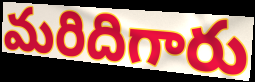
మరిదిగారు